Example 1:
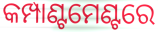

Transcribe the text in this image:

କମ୍ପାଣ୍ଟମେଣ୍ଟରେ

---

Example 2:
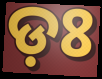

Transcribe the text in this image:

ଡ଼ଃ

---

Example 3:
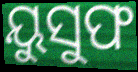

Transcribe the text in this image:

ୟୁସୁଫ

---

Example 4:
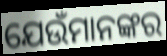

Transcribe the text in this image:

ଯେଉଁମାନଙ୍କର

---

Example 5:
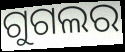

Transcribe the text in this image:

ଗୁଗଲର